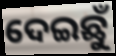
ଦେଇଛୁଁ